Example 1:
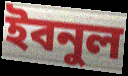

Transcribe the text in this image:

ইবনুল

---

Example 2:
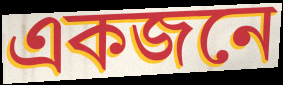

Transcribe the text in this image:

একজনে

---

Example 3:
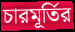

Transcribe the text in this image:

চারমূর্তির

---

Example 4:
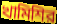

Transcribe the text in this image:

খামিশির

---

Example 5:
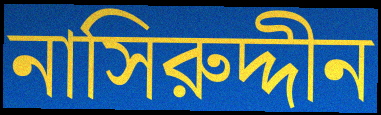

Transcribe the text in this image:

নাসিরুদ্দীন